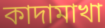
কাদামাখা